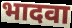
भादवा